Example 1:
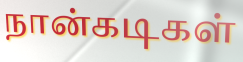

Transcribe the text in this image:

நான்கடிகள்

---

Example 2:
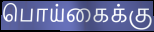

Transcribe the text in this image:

பொய்கைக்கு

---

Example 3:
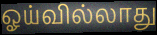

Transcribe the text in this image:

ஓய்வில்லாது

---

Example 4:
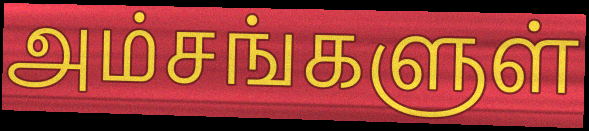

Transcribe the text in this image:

அம்சங்களுள்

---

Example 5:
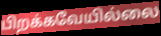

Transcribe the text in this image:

பிறக்கவேயில்லை